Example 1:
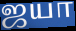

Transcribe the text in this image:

ஜயா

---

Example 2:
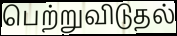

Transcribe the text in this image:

பெற்றுவிடுதல்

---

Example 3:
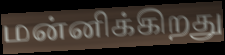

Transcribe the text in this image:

மன்னிக்கிறது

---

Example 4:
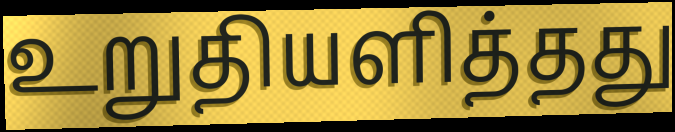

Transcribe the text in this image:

உறுதியளித்தது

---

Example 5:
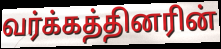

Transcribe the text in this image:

வர்க்கத்தினரின்